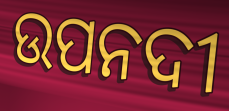
ଉପନଦୀ